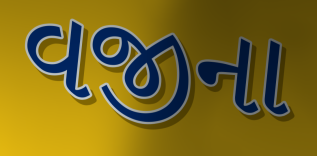
વજીના